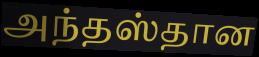
அந்தஸ்தான